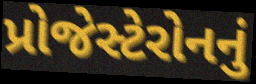
પ્રોજેસ્ટેરોનનું